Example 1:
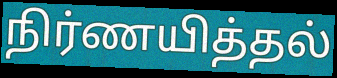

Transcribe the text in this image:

நிர்ணயித்தல்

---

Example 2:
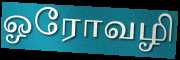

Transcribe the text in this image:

ஓரோவழி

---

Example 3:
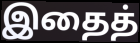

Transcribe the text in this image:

இதைத்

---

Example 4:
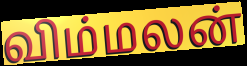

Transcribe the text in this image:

விம்மலன்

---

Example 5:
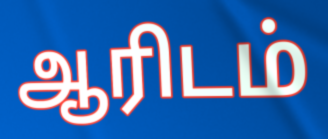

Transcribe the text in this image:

ஆரிடம்